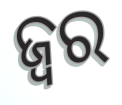
ଜ୍ବର